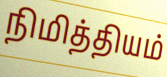
நிமித்தியம்